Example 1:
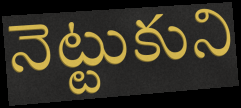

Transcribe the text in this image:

నెట్టుకుని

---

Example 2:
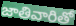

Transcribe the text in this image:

జాతివారితో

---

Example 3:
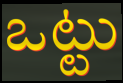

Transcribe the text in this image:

ఒట్టు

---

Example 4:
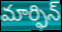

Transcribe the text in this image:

మార్ఫిన్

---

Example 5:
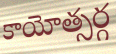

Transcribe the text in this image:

కాయోత్సర్గ